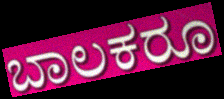
ಬಾಲಕರೂ